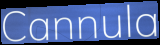
Cannula